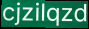
cjzilqzd